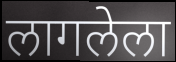
लागलेला